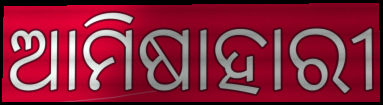
ଆମିଷାହାରୀ